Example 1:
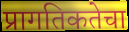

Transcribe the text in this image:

प्रागतिकतेचा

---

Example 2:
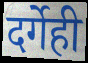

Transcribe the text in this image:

दर्गेही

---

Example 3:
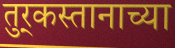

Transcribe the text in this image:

तुर्कस्तानाच्या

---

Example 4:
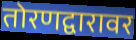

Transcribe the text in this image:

तोरणद्वारावर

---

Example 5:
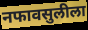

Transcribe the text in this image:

नफावसुलीला